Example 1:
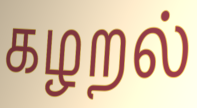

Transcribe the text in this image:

கழறல்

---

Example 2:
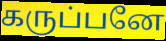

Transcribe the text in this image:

கருப்பனே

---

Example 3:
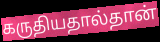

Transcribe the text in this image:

கருதியதால்தான்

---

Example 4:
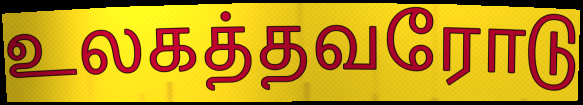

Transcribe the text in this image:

உலகத்தவரோடு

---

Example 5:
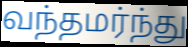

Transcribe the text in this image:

வந்தமர்ந்து